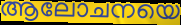
ആലോചനയെ